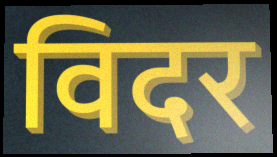
विदर